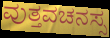
ವುತ್ತವಚನಸ್ಸ